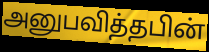
அனுபவித்தபின்